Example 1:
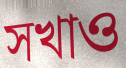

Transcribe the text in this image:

সখাও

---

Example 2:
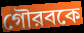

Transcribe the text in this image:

গৌরবকে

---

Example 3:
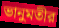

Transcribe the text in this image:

ভানুমতীর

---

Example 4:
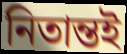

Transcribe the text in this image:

নিতান্তই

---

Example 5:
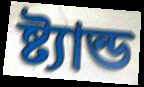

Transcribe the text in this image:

ষ্ট্যান্ড